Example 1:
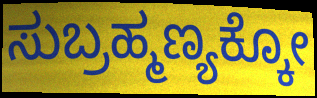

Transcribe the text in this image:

ಸುಬ್ರಹ್ಮಣ್ಯಕ್ಕೋ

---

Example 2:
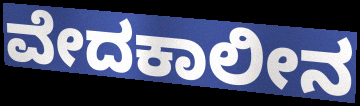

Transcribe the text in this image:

ವೇದಕಾಲೀನ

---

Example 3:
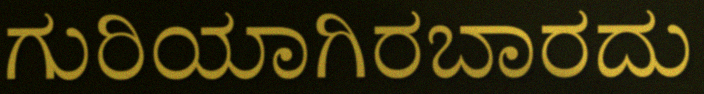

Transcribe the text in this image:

ಗುರಿಯಾಗಿರಬಾರದು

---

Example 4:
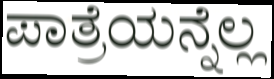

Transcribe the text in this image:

ಪಾತ್ರೆಯನ್ನೆಲ್ಲ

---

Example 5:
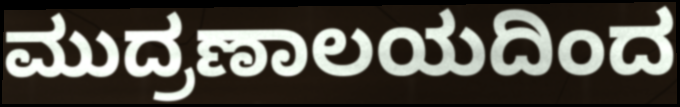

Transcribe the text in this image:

ಮುದ್ರಣಾಲಯದಿಂದ